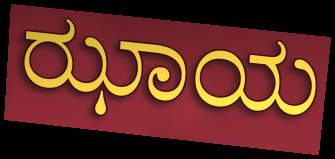
ಝಾಯ